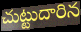
చుట్టుదారిన